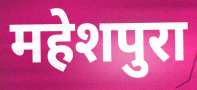
महेशपुरा